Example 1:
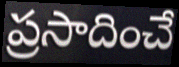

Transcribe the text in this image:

ప్రసాదించే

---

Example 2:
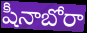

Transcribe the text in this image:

షీనాబోరా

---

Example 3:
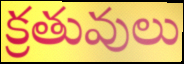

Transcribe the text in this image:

క్రతువులు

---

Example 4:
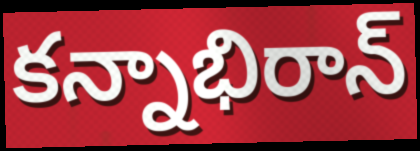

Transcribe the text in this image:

కన్నాభిరాన్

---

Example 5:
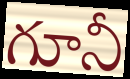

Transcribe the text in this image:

గూనీ